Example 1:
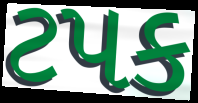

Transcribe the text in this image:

ટપક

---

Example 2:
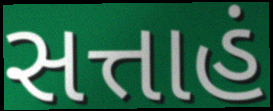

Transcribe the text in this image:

સત્તાહં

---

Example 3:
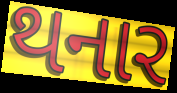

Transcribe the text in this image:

થનાર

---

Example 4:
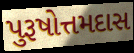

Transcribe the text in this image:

પુરૂષોત્તમદાસ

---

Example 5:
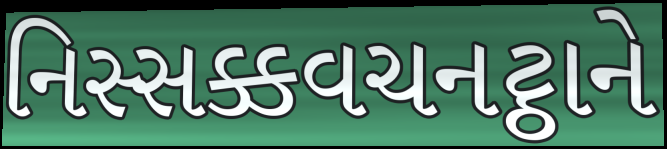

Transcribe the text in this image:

નિસ્સક્કવચનટ્ઠાને